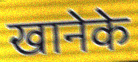
खानेके